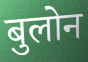
बुलोन